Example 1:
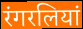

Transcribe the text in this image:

रंगरलियां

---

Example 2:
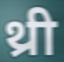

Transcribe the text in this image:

थ्री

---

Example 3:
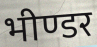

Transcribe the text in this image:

भीण्डर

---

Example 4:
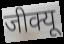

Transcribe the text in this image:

जीक्यू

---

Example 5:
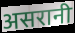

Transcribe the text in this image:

असरानी